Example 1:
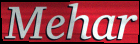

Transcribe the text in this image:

Mehar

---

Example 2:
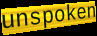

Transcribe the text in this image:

unspoken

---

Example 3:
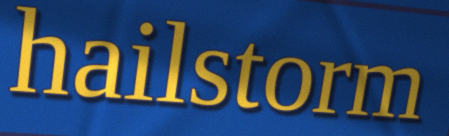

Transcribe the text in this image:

hailstorm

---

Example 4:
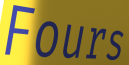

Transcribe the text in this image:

Fours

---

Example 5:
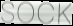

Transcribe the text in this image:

SOCK